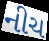
નીચ